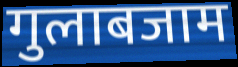
गुलाबजाम